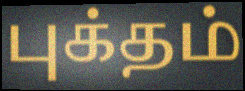
புக்தம்